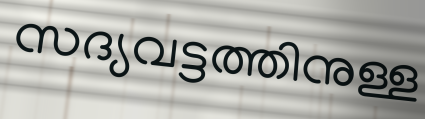
സദ്യവട്ടത്തിനുള്ള